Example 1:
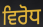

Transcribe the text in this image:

ਵਿਰੋਧ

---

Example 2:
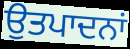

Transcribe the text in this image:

ਉਤਪਾਦਨਾਂ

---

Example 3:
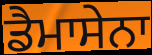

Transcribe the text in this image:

ਡੈਮਾਸੇਨਾ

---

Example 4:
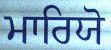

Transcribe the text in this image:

ਮਾਰਿਯੋ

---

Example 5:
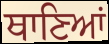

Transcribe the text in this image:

ਥਾਣਿਆਂ